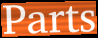
Parts